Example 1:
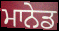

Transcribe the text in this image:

ਮਾਨੇਡ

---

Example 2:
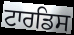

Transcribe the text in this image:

ਟਾਰਡਿਸ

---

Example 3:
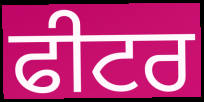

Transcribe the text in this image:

ਫੀਟਰ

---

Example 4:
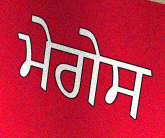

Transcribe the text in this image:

ਮੇਗੇਸ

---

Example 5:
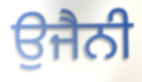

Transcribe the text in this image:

ਉਜੈਨੀ